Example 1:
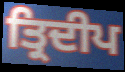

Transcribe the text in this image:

ਤ੍ਰਿਦੀਪ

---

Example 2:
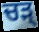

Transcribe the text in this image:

ਚੜ੍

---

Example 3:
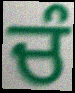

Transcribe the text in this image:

ਚੰ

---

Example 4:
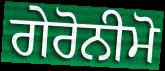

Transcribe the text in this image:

ਗੇਰੋਨੀਮੋ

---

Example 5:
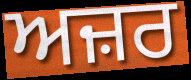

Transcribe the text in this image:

ਅਜ਼ਰ